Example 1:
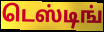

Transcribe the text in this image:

டெஸ்டிங்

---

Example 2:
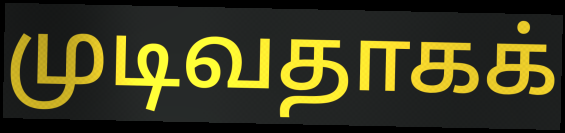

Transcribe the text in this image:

முடிவதாகக்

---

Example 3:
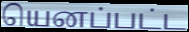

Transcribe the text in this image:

யெனப்பட்ட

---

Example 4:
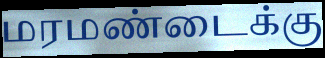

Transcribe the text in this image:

மரமண்டைக்கு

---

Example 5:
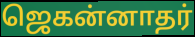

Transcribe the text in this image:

ஜெகன்னாதர்